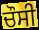
ਚੌਸੀ